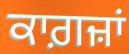
ਕਾਗ਼ਜ਼ਾਂ